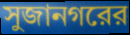
সুজানগরের